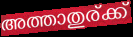
അത്താതുര്ക്ക്